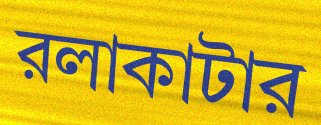
রলাকাটার